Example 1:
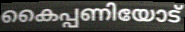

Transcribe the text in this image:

കൈപ്പണിയോട്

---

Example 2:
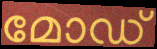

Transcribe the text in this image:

മോഡ്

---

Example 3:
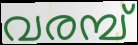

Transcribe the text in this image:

വരമ്പ്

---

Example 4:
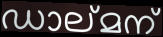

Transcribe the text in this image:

ഡാല്മന്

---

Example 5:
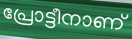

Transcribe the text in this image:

പ്രോട്ടീനാണ്